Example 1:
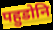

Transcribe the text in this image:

पहुडोनि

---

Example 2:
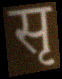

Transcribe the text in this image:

सृ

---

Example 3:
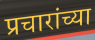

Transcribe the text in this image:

प्रचारांच्या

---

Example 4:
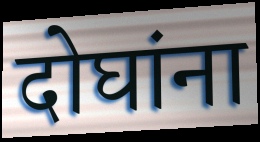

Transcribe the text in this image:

दोघांना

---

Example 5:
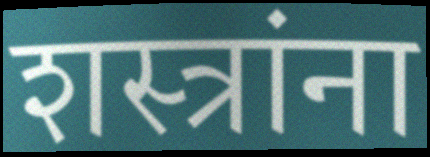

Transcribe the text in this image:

शस्त्रांना